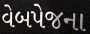
વેબપેજના